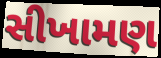
સીખામણ